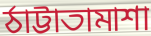
ঠাট্টাতামাশা